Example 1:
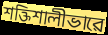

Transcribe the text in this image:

শক্তিশালীভাৱে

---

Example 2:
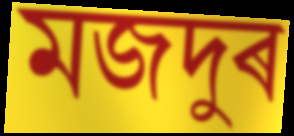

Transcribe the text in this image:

মজদুৰ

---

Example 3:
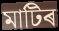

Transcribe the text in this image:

মাটিৰ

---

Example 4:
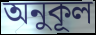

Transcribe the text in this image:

অনুকূল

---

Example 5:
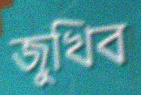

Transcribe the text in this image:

জুখিব